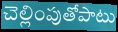
చెల్లింపుతోపాటు